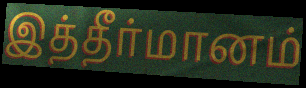
இத்தீர்மானம்